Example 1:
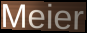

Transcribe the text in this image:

Meier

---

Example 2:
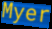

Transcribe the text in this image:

Myer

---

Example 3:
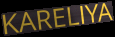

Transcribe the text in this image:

KARELIYA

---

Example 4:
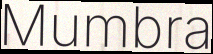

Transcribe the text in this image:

Mumbra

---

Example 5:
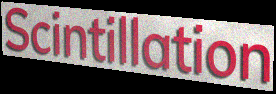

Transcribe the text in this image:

Scintillation